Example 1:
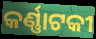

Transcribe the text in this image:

କର୍ଣ୍ଣାଟକୀ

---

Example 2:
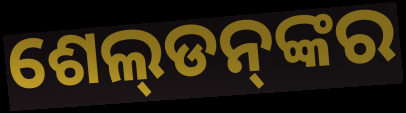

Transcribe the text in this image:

ଶେଲ୍‌ଡନ୍‌ଙ୍କର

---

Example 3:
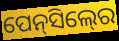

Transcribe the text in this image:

ପେନ୍‍ସିଲ୍‍ରେ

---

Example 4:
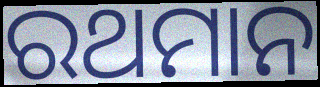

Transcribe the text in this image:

ରଥମାନ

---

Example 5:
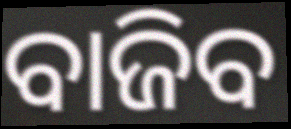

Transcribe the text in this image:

ବାଜିବ